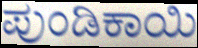
ಪುಂಡಿಕಾಯಿ